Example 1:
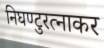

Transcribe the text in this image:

निघण्टुरत्नाकर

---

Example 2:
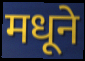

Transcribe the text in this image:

मधूने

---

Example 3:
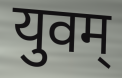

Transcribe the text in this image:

युवम्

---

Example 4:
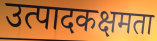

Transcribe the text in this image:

उत्पादकक्षमता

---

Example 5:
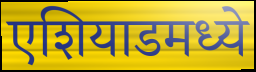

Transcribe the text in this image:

एशियाडमध्ये